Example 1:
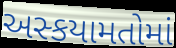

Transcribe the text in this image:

અસ્કયામતોમાં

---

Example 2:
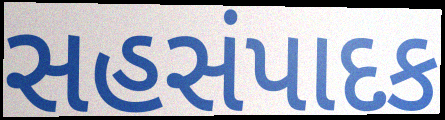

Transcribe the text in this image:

સહસંપાદક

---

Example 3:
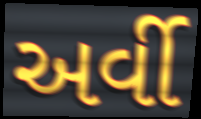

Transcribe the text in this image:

અર્વી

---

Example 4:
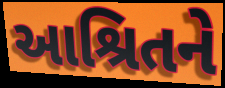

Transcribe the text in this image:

આશ્રિતને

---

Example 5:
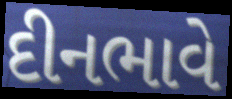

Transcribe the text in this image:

દીનભાવે